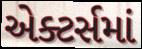
એક્ટર્સમાં